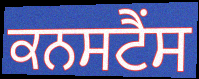
ਕਨਸਟੈਂਸ